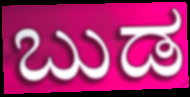
ಬುಡ